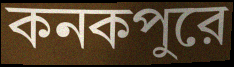
কনকপুরে